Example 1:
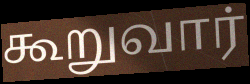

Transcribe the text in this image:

கூறுவார்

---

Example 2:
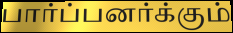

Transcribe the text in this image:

பார்ப்பனர்க்கும்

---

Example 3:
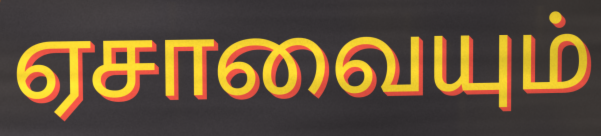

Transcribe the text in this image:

ஏசாவையும்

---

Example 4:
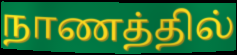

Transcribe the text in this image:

நாணத்தில்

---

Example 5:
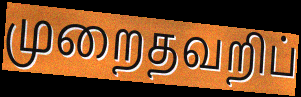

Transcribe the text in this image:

முறைதவறிப்